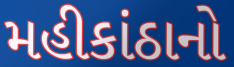
મહીકાંઠાનો